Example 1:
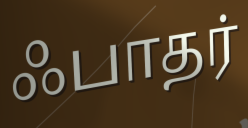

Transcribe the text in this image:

ஃபாதர்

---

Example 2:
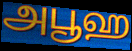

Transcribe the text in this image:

அபூஹ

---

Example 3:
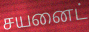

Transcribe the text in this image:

சயனைட்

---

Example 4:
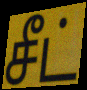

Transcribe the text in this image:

சீட்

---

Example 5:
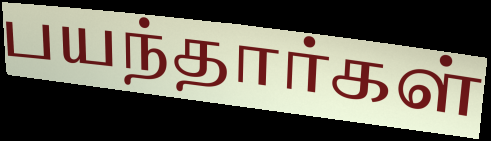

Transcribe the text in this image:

பயந்தார்கள்